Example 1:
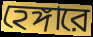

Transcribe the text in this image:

হেঙ্গারে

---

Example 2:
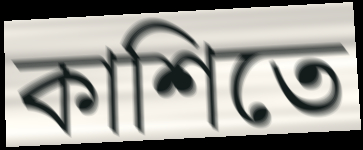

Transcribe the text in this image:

কাশিতে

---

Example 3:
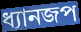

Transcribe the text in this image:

ধ্যানজপ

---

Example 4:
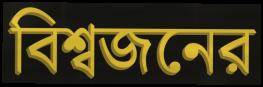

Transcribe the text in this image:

বিশ্বজনের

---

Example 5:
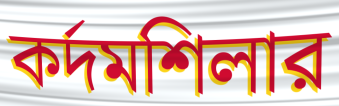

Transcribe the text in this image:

কর্দমশিলার